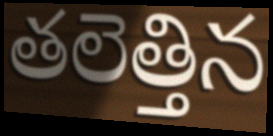
తలెత్తిన